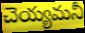
చెయ్యమనీ